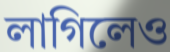
লাগিলেও